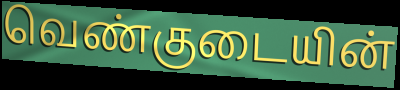
வெண்குடையின்